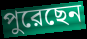
পুরেছেন